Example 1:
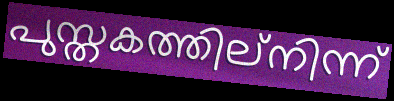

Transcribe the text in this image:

പുസ്തകത്തില്നിന്ന്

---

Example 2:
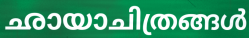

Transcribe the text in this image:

ഛായാചിത്രങ്ങൾ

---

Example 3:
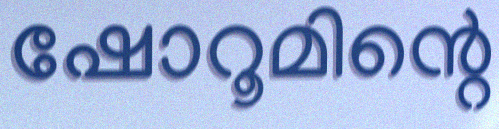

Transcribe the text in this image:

ഷോറൂമിന്റെ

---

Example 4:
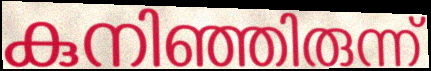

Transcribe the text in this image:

കുനിഞ്ഞിരുന്ന്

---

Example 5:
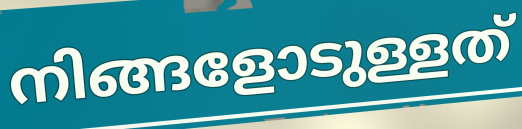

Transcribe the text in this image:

നിങ്ങളോടുള്ളത്